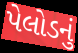
પેલોડનું